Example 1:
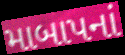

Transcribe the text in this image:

માબાપનાં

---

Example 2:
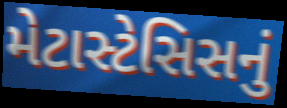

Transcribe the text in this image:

મેટાસ્ટેસિસનું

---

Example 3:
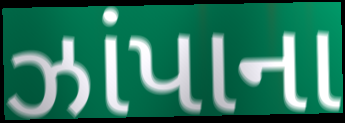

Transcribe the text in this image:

ઝાંપાના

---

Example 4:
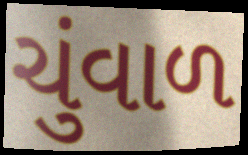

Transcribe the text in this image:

ચુંવાળ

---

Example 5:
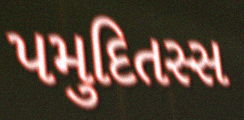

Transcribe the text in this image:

પમુદિતસ્સ